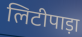
लिटीपाड़ा